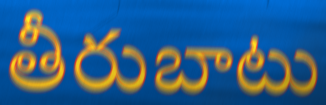
తీరుబాటు